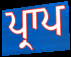
ਪ੍ਰਾਪ